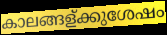
കാലങ്ങള്ക്കുശേഷം